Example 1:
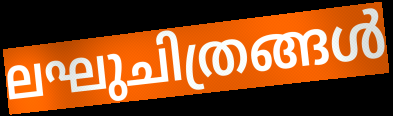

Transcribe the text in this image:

ലഘുചിത്രങ്ങൾ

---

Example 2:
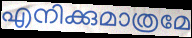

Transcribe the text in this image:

എനിക്കുമാത്രമേ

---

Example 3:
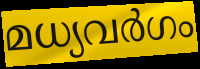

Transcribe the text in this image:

മധ്യവർഗം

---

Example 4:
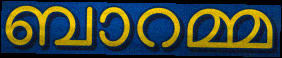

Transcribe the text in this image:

ബാറമ്മ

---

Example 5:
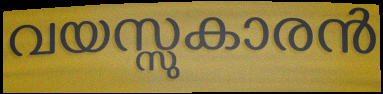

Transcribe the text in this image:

വയസ്സുകാരൻ